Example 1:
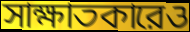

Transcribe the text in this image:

সাক্ষাতকারেও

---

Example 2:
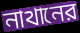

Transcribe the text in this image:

নাথানের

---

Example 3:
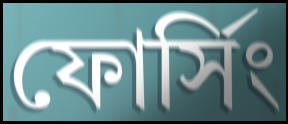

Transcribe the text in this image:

ফোর্সিং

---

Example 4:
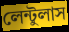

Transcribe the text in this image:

লেন্টুলাস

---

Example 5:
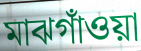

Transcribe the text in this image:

মাঝগাঁওয়া